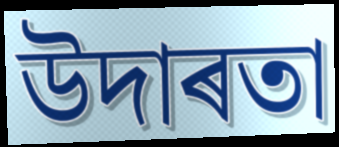
উদাৰতা